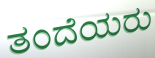
ತಂದೆಯರು